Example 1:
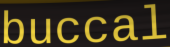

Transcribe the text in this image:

buccal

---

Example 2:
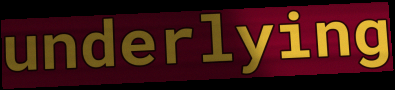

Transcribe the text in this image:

underlying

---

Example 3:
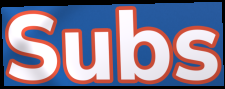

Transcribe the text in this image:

Subs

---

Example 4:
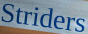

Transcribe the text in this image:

Striders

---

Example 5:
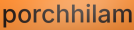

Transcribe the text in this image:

porchhilam